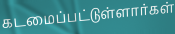
கடமைப்பட்டுள்ளார்கள்